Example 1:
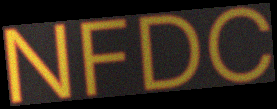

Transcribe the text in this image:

NFDC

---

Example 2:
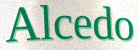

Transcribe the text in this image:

Alcedo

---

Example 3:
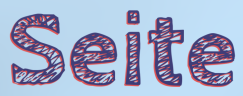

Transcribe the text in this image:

Seite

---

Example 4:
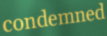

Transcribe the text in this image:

condemned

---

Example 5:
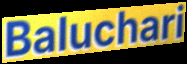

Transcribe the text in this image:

Baluchari